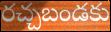
రచ్చబండకు